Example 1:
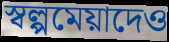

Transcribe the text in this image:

স্বল্পমেয়াদেও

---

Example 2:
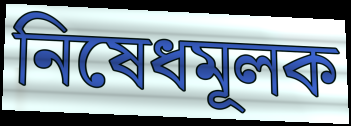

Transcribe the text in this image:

নিষেধমূলক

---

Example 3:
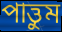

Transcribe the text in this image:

পাত্তুম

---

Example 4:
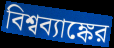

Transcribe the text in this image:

বিশ্বব্যাঙ্কের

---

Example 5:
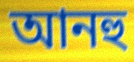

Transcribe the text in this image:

আনহু